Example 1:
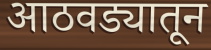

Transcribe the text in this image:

आठवड्यातून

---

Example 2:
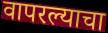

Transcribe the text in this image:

वापरल्याचा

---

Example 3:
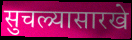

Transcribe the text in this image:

सुचल्यासारखे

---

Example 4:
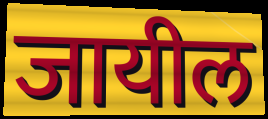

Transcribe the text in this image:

जायील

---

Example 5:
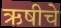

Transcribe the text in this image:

ऋषीचे